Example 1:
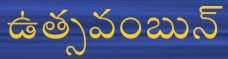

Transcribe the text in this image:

ఉత్సవంబున్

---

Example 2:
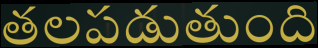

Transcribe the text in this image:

తలపడుతుంది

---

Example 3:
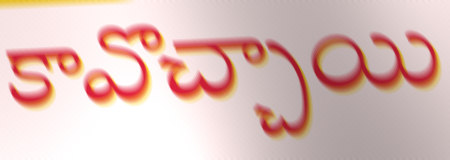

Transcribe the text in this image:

కావొచ్చాయి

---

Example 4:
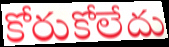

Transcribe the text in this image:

కోరుకోలేదు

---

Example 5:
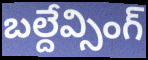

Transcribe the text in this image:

బల్దేవ్సింగ్